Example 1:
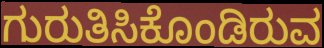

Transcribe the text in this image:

ಗುರುತಿಸಿಕೊಂಡಿರುವ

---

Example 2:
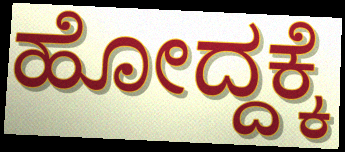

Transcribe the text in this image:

ಹೋದ್ದಕ್ಕೆ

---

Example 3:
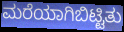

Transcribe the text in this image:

ಮರೆಯಾಗಿಬಿಟ್ಟಿತು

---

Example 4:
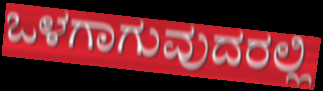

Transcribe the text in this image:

ಒಳಗಾಗುವುದರಲ್ಲಿ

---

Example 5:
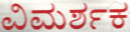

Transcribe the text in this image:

ವಿಮರ್ಶಕ